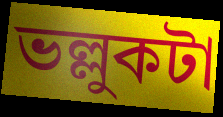
ভল্লুকটা